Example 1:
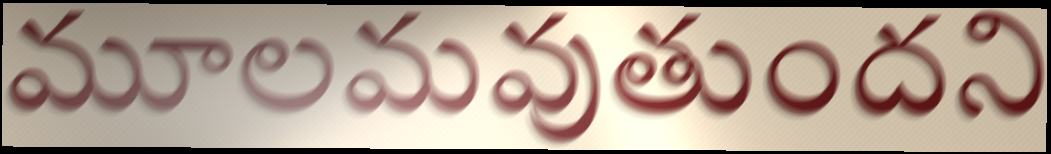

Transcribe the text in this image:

మూలమవుతుందని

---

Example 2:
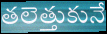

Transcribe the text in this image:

తలెత్తుకునే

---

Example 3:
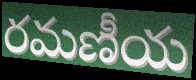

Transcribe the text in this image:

రమణీయ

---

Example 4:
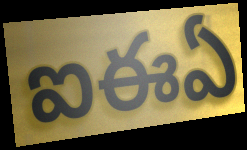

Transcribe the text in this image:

ఐఈఏ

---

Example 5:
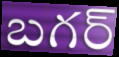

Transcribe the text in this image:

బగర్